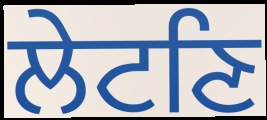
ਲੇਟਣਿ